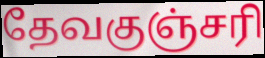
தேவகுஞ்சரி